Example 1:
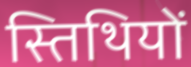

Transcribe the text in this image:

स्तिथियों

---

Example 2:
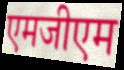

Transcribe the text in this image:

एमजीएम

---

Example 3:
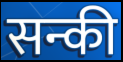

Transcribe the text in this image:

सन्की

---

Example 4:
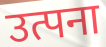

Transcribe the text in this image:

उत्पना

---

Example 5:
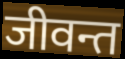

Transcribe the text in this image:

जीवन्त